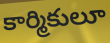
కార్మికులూ